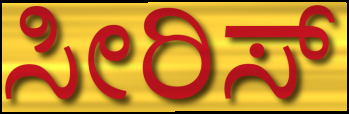
ಸೀರಿಸ್